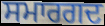
ਸਮਾਰਗਦ